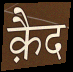
क़ैद